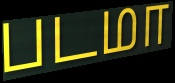
படமா